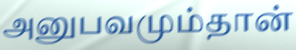
அனுபவமும்தான்